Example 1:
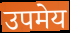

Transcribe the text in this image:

उपमेय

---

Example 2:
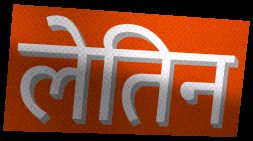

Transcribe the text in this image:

लेतिन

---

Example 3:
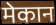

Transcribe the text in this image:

मेकान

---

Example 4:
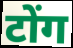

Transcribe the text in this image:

टोंग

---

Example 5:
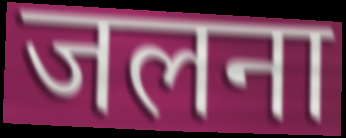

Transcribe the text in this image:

जलना